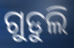
ଗୁଡୁଲି